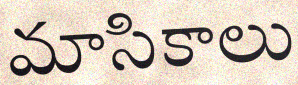
మాసికాలు